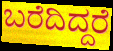
ಬರೆದಿದ್ದರೆ